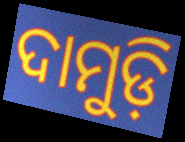
ଦାମୁଡ଼ି